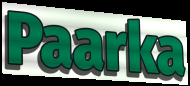
Paarka